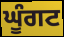
ਘੂੰਗਟ